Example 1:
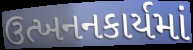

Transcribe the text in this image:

ઉત્ખનનકાર્યમાં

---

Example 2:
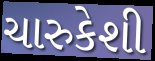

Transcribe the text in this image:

ચારુકેશી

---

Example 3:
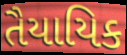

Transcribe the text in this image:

તૈયાયિક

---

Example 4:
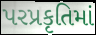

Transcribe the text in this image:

પરપ્રકૃતિમાં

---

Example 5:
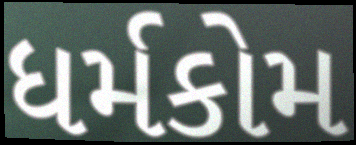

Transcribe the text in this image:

ધર્મકોમ